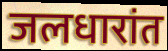
जलधारांत